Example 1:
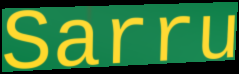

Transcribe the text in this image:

Sarru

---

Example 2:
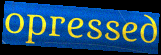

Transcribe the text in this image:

opressed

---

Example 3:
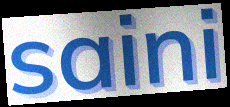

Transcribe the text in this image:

saini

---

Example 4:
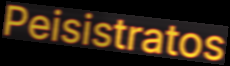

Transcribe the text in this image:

Peisistratos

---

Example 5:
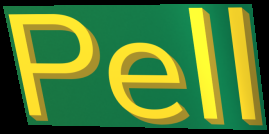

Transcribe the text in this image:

Pell